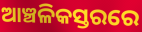
ଆଞ୍ଚଳିକସ୍ତରରେ